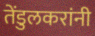
तेंडुलकरांनी